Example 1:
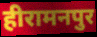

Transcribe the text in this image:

हीरामनपुर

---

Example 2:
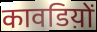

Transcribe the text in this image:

कावडिय़ों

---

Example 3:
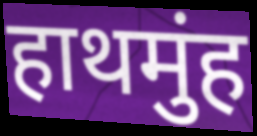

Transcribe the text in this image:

हाथमुंह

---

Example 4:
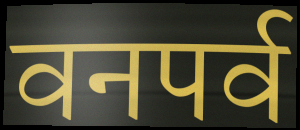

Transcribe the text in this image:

वनपर्व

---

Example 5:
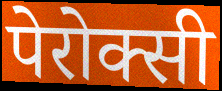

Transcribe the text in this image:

पेरोक्सी